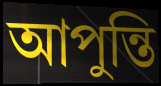
আপুন্তি